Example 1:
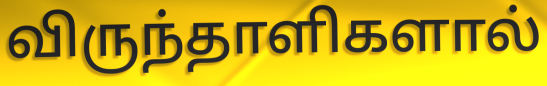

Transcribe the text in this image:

விருந்தாளிகளால்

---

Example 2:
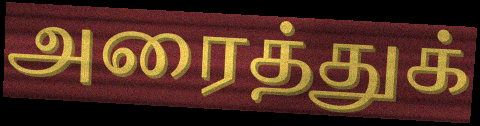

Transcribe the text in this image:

அரைத்துக்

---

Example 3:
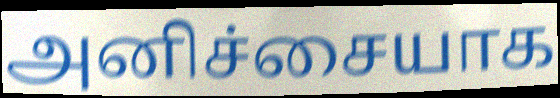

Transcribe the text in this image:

அனிச்சையாக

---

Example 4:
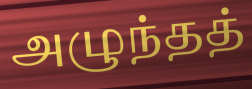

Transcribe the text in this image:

அழுந்தத்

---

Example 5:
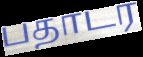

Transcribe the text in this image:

பதாடர